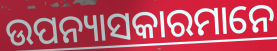
ଉପନ୍ୟାସକାରମାନେ